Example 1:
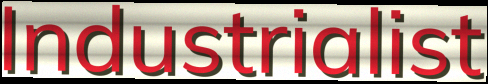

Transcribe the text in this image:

Industrialist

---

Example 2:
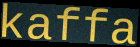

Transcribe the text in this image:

kaffa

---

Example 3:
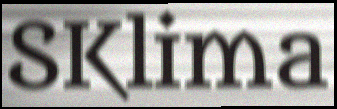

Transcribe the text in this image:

SKlima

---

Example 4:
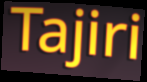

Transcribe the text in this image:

Tajiri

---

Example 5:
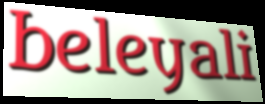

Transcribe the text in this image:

beleyali